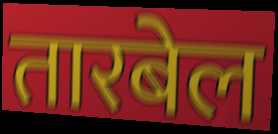
तारबेल